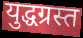
युद्धग्रस्त